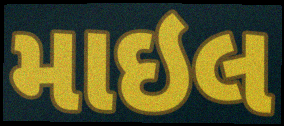
માઇલ